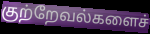
குற்றேவல்களைச்